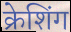
क्रेशिंग